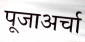
पूजाअर्चा